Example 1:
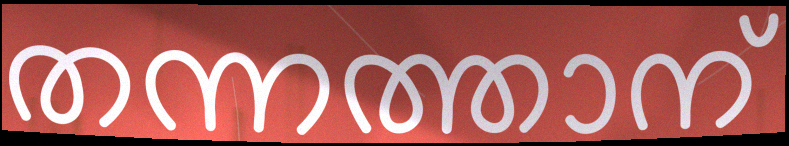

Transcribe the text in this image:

തന്നത്താന്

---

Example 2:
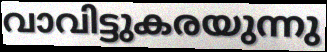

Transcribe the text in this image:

വാവിട്ടുകരയുന്നു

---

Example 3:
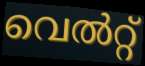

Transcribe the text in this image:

വെൽറ്റ്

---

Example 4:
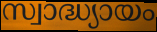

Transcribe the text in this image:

സ്വാദ്ധ്യായം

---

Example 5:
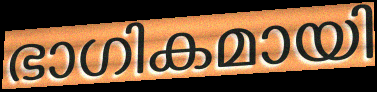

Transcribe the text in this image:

ഭാഗികമായി